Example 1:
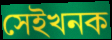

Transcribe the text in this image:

সেইখনক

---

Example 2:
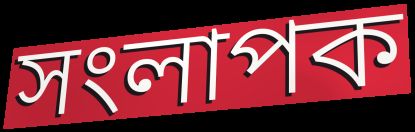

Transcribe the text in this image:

সংলাপক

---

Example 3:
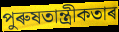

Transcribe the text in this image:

পুৰুষতান্ত্ৰীকতাৰ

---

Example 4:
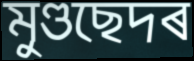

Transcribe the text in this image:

মুণ্ডছেদৰ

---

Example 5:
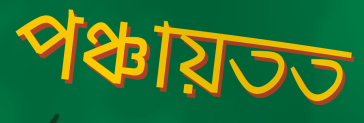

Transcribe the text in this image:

পঞ্চায়তত